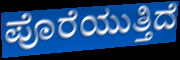
ಪೊರೆಯುತ್ತಿದೆ